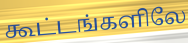
கூட்டங்களிலே